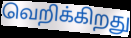
வெறிக்கிறது